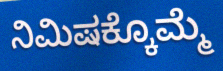
ನಿಮಿಷಕ್ಕೊಮ್ಮೆ